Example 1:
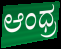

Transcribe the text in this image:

ಆಂಧ್ರ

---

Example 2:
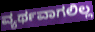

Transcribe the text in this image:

ವ್ಯರ್ಥವಾಗಲಿಲ್ಲ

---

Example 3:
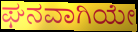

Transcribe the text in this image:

ಘನವಾಗಿಯೇ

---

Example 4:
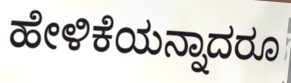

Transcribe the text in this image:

ಹೇಳಿಕೆಯನ್ನಾದರೂ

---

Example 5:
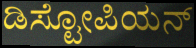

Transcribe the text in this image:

ಡಿಸ್ಟೋಪಿಯನ್